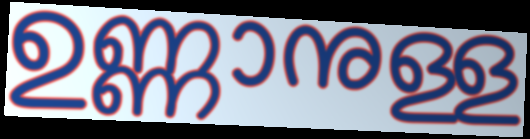
ഉണ്ണാനുള്ള